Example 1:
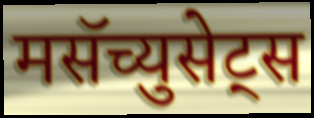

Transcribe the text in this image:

मसॅच्युसेट्स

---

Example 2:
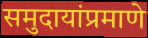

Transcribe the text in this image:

समुदायांप्रमाणे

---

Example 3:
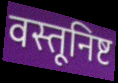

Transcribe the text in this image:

वस्तूनिष्ट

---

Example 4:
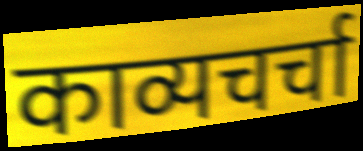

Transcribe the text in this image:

काव्यचर्चा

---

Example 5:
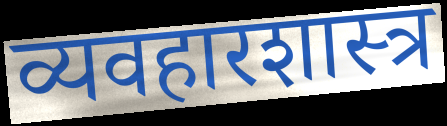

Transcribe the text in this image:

व्यवहारशास्त्र